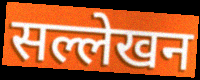
सल्लेखन